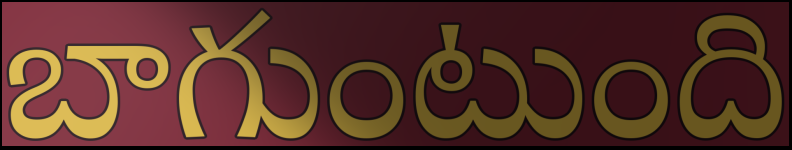
బాగుంటుంది